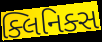
ક્લિનિક્સ